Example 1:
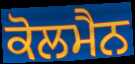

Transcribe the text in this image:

ਕੋਲਮੈਨ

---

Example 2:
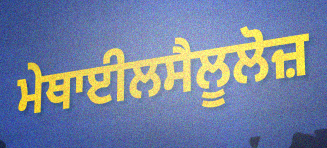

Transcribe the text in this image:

ਮੇਥਾਈਲਸੈਲੂਲੋਜ਼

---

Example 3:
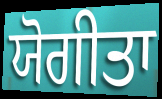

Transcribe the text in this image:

ਯੋਗੀਤਾ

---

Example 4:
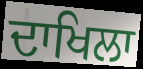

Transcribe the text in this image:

ਦਾਖਿਲਾ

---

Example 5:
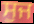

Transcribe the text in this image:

ਸੁਜ